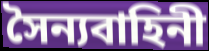
সৈন্যবাহিনী